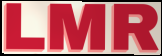
LMR